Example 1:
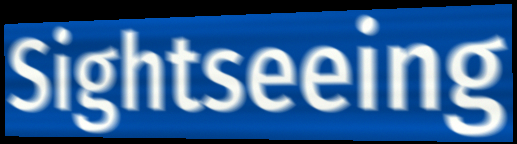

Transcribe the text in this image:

Sightseeing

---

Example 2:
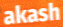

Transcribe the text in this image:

akash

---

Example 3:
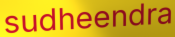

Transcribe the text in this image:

sudheendra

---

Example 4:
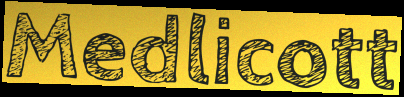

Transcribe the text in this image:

Medlicott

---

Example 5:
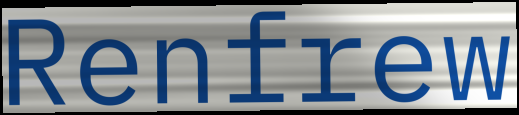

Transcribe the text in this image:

Renfrew